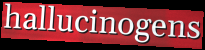
hallucinogens